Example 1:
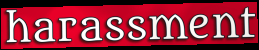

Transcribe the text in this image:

harassment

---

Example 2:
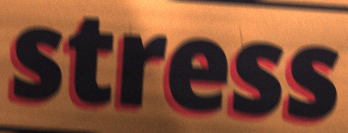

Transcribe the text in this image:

stress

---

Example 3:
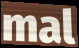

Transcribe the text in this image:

mal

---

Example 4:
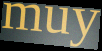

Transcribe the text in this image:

muy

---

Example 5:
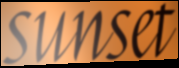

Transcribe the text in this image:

sunset